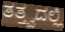
ತತ್ತ್ವದಲ್ಲಿ